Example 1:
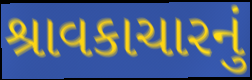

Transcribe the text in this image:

શ્રાવકાચારનું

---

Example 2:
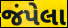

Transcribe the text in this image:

જંપેલા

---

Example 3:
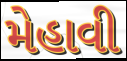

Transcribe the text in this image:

મેહાવી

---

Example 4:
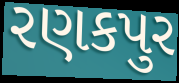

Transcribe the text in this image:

રણકપુર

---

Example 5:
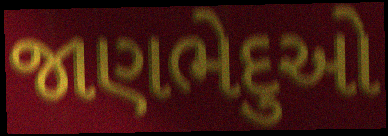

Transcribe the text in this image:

જાણભેદુઓ